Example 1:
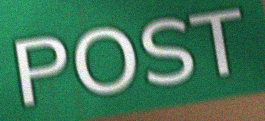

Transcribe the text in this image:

POST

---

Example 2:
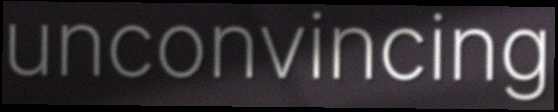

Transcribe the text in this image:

unconvincing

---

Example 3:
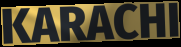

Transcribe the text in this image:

KARACHI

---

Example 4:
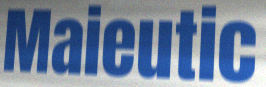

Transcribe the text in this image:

Maieutic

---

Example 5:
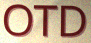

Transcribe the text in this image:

OTD